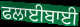
ਫਲਾਈਬਾਈ